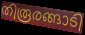
തിരൂരങ്ങാടി